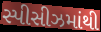
સ્પીસીઝમાંથી